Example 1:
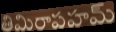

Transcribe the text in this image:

తిమిరాపహమ్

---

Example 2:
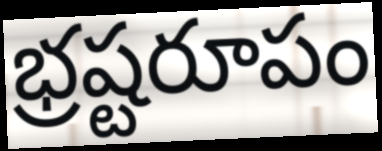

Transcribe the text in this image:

భ్రష్టరూపం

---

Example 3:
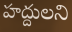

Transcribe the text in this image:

హద్దులని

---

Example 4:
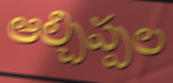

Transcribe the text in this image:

ఆల్చిప్పల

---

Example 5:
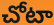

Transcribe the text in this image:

చోటా